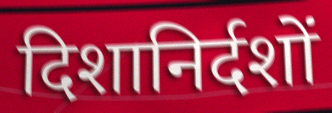
दिशानिर्दशों